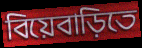
বিয়েবাড়িতে